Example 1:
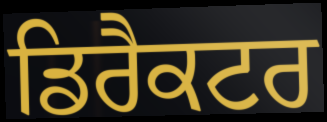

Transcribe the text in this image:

ਡਿਰੈਕਟਰ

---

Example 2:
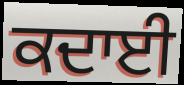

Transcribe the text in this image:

ਕਦਾਈ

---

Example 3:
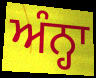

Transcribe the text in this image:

ਅੰਨ੍ਹ੍ਹਾ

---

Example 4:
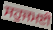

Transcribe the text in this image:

ਸਹੁਜਮਈ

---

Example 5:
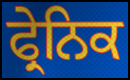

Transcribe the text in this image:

ਫ੍ਰੇਨਿਕ